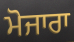
ਮੋਜਾਰਾ